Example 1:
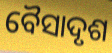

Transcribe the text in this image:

ବୈସାଦୃଶ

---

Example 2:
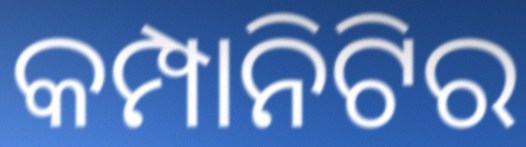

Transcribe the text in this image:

କମ୍ପାନିଟିର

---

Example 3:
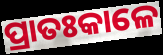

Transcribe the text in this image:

ପ୍ରାତଃକାଳେ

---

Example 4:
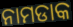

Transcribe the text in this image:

ନାମଡାକ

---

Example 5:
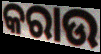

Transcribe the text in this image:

କରାଉ